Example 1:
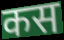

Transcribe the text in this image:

कस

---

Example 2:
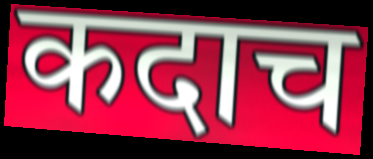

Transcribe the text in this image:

कदाच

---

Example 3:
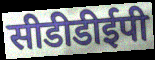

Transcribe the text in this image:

सीडीडीईपी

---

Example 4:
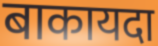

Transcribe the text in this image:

बाकायदा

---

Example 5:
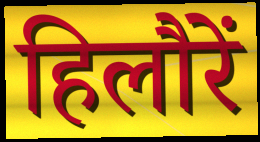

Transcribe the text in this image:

हिलौरें